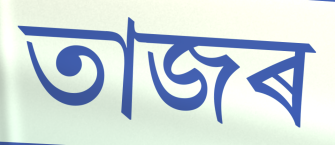
তাজৰ